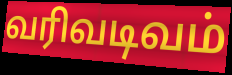
வரிவடிவம்